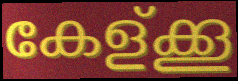
കേള്ക്കൂ